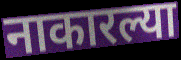
नाकारल्या